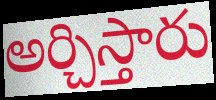
అర్చిస్తారు